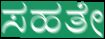
ಸಹತೇ